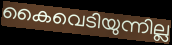
കൈവെടിയുന്നില്ല